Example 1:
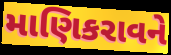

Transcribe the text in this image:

માણિકરાવને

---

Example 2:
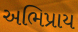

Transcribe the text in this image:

અભિપ્રાય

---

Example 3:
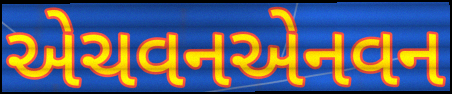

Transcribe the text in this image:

એચવનએનવન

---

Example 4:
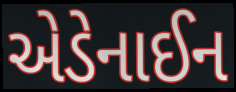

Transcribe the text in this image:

એડેનાઈન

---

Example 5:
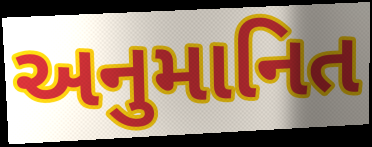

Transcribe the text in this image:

અનુમાનિત